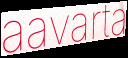
aavarta